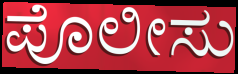
ಪೊಲೀಸು